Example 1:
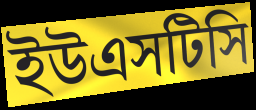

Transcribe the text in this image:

ইউএসটিসি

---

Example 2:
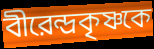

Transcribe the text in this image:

বীরেন্দ্রকৃষ্ণকে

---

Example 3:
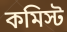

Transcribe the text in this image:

কমিস্ট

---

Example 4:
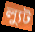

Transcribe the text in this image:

ল্যুট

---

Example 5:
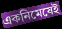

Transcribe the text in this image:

একনিমেষেই